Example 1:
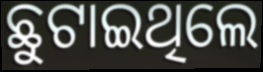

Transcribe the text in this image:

ଛୁଟାଇଥିଲେ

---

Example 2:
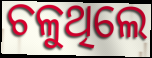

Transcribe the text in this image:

ଚଳୁଥିଲେ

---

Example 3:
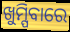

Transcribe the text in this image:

ଖୁମ୍ପିବାରେ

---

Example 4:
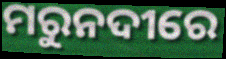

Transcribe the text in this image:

ମରୁନଦୀରେ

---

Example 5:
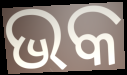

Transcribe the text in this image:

ଭକ